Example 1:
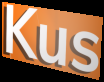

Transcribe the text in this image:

Kus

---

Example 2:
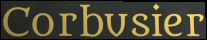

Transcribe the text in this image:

Corbusier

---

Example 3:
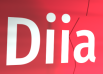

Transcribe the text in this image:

Diia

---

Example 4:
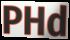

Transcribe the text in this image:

PHd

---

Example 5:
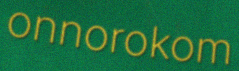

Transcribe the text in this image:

onnorokom